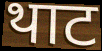
थाट